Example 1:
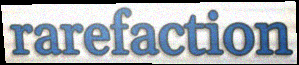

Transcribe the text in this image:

rarefaction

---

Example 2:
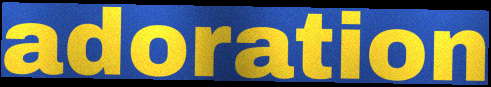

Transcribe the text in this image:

adoration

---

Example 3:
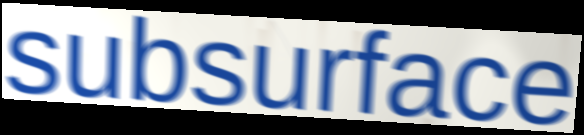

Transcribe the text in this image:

subsurface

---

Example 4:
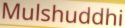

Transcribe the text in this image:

Mulshuddhi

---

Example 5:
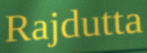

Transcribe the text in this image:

Rajdutta